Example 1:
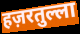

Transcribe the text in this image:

हज़रतुल्ला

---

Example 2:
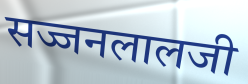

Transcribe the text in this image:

सज्जनलालजी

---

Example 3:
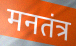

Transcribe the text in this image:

मनतंत्र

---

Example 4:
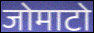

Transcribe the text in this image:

जोमाटो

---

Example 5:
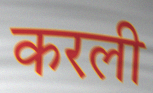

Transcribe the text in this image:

करली